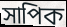
সাপিক